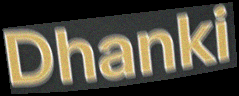
Dhanki